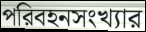
পরিবহনসংখ্যার